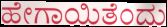
ಹೇಗಾಯಿತೆಂದು